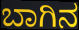
ಬಾಗಿನ